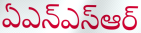
ఏఎన్ఎస్ఆర్